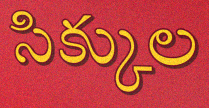
సిక్కుల